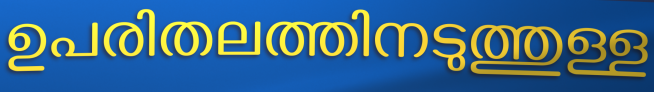
ഉപരിതലത്തിനടുത്തുള്ള